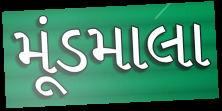
મૂંડમાલા